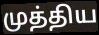
முத்திய